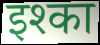
इश्का